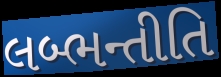
લબ્ભન્તીતિ